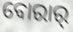
ବୋରାର୍